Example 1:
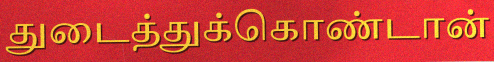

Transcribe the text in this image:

துடைத்துக்கொண்டான்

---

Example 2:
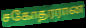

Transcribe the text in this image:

சகோதரரான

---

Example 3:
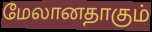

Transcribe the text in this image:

மேலானதாகும்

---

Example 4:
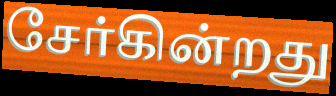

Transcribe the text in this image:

சேர்கின்றது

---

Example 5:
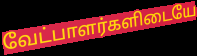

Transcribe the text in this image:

வேட்பாளர்களிடையே